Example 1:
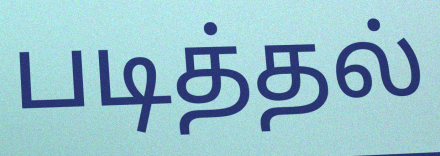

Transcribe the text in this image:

படித்தல்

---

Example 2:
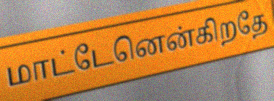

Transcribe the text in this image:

மாட்டேனென்கிறதே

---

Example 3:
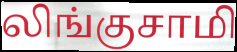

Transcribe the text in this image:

லிங்குசாமி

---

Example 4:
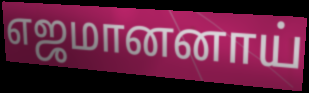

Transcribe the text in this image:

எஜமானனாய்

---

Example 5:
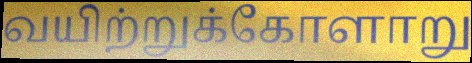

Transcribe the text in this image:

வயிற்றுக்கோளாறு